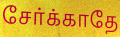
சேர்க்காதே